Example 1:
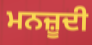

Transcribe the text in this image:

ਮਨਜ਼ੂਦੀ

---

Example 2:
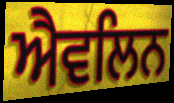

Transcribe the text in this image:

ਐਵਲਿਨ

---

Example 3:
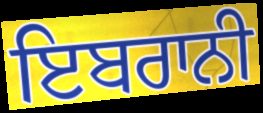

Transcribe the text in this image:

ਇਬਰਾਨੀ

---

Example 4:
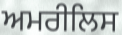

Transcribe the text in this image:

ਅਮਰੀਲਿਸ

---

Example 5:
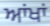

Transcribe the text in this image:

ਆਂਖਾਂ